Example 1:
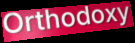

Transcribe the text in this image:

Orthodoxy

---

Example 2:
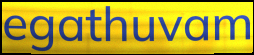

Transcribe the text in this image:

egathuvam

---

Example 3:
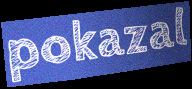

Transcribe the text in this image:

pokazal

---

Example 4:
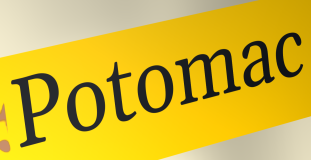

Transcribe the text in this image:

Potomac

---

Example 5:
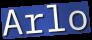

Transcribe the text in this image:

Arlo